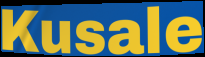
Kusale